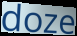
doze